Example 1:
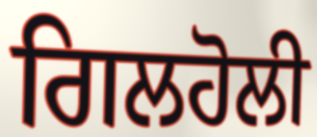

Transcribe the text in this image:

ਗਿਲਹੋਲੀ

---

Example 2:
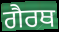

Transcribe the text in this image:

ਗੈਰਥ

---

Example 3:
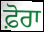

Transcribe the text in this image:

ਫ਼ੋਰਾ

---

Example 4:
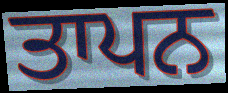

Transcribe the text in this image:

ਤਾਪਨ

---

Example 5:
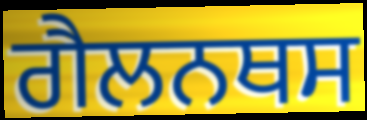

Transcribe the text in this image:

ਗੈਲਨਥਸ